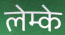
लेम्के